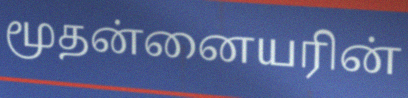
மூதன்னையரின்